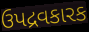
ઉપદ્રવકારક